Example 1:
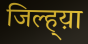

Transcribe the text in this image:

जिल्ह्य़ा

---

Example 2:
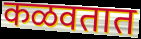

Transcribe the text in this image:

कळवतात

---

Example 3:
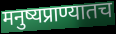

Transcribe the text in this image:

मनुष्यप्राण्यातच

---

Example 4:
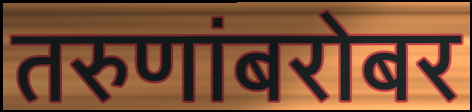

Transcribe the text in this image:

तरुणांबरोबर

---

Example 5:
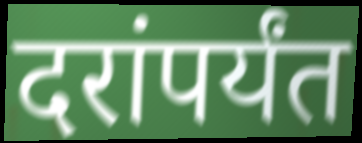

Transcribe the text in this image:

दरांपर्यंत